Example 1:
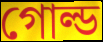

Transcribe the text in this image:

গোল্ড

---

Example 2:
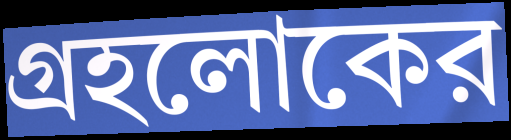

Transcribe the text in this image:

গ্রহলোকের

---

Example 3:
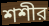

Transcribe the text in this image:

শশীর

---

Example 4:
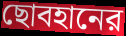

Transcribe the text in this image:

ছোবহানের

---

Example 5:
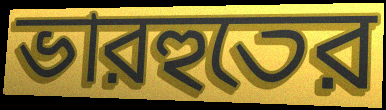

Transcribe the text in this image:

ভারহুতের